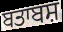
ਬਤਾਬਸ਼